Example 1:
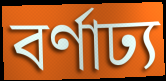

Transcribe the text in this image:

বর্ণাঢ্য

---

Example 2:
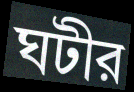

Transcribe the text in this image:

ঘটীর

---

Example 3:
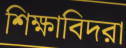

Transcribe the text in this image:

শিক্ষাবিদরা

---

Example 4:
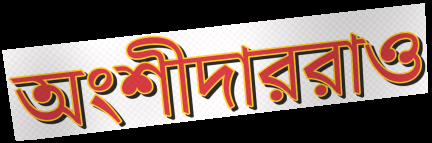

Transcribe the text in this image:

অংশীদাররাও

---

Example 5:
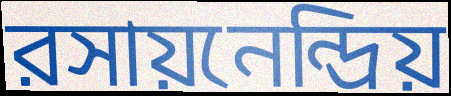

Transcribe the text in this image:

রসায়নেন্দ্রিয়